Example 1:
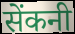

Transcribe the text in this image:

सेंकनी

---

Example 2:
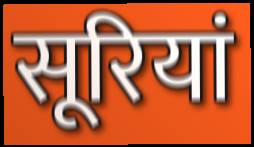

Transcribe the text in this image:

सूरियां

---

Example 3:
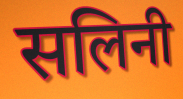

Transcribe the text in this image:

सलिनी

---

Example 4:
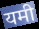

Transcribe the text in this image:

यमी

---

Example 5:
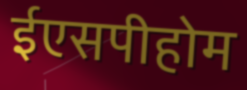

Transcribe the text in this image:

ईएसपीहोम